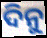
ଦିନୁ